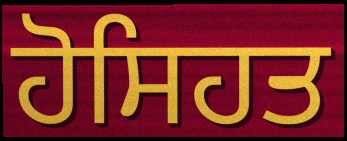
ਹੋਸਿਹਤ